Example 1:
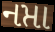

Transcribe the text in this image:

નપ્તા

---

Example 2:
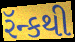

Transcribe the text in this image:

રૅન્કથી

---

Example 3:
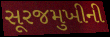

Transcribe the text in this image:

સૂરજમુખીની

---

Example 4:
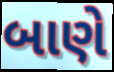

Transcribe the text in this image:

બાણે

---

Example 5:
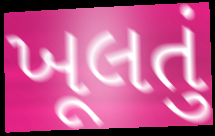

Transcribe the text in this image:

ખૂલતું